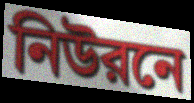
নিউরনে